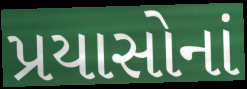
પ્રયાસોનાં